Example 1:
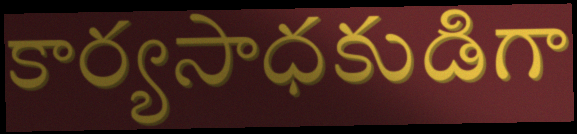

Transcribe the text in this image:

కార్యసాధకుడిగా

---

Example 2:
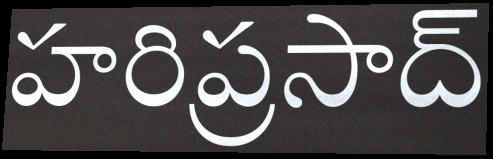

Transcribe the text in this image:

హరిప్రసాద్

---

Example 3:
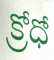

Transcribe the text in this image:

క్రోధో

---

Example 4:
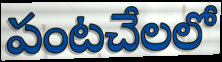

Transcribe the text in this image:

పంటచేలలో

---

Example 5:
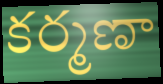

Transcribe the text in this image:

కర్మణా